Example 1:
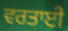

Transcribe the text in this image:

ਵਰਤਾਈ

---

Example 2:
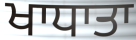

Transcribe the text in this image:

ਖਾਧਾਤਾ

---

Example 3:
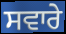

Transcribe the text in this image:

ਸਵਾਰੇ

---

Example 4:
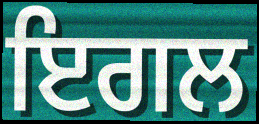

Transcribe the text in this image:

ਇਗਲ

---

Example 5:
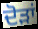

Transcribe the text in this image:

ਦੋੜਾਂ